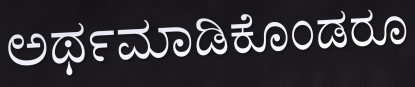
ಅರ್ಥಮಾಡಿಕೊಂಡರೂ